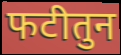
फटीतुन